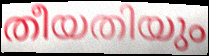
തീയതിയും